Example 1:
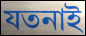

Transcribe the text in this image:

যতনাই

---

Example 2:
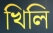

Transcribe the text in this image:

খিলি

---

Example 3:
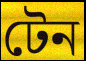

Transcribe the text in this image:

টেন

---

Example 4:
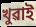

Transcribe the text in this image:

খুৱাই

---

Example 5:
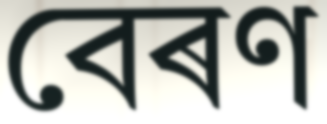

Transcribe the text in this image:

বেৰণ